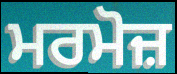
ਮਰਮੋਜ਼